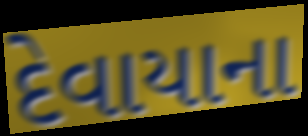
દેવાયાના